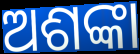
ଅଶଙ୍କା